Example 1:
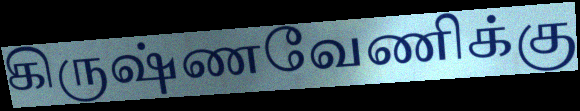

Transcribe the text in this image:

கிருஷ்ணவேணிக்கு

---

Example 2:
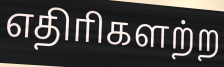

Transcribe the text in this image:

எதிரிகளற்ற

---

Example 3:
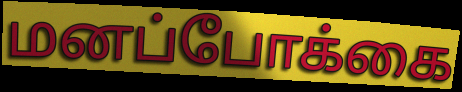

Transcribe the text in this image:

மனப்போக்கை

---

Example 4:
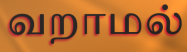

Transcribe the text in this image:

வறாமல்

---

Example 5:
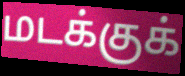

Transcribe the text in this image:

மடக்குக்